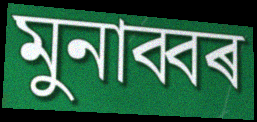
মুনাব্বৰ